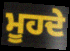
ਮੂਹਦੇ